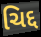
ચિદ્દ